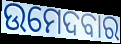
ଉମେଦବାର